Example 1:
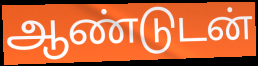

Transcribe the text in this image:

ஆண்டுடன்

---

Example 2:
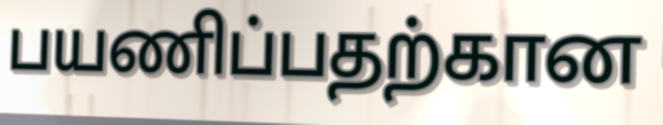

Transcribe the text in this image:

பயணிப்பதற்கான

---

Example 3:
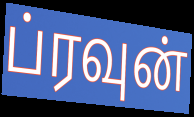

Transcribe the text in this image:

ப்ரவுன்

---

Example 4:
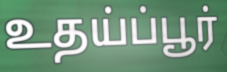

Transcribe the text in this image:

உதய்ப்பூர்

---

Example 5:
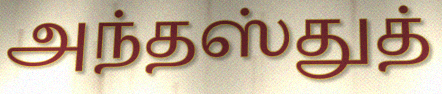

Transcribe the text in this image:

அந்தஸ்துத்